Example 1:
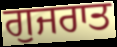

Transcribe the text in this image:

ਗੁਜਰਾਤ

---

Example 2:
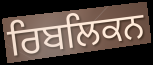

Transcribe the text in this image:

ਰਿਬਲਿਕਨ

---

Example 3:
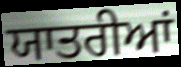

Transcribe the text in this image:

ਯਾਤਰੀਆਂ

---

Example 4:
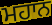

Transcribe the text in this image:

ਮਹਾਨ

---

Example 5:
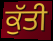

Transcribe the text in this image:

ਕੁੱਤੀ